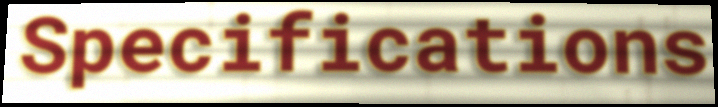
Specifications